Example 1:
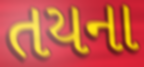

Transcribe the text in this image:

તયના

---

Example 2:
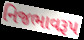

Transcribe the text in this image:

નિજભાવરૂપ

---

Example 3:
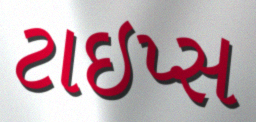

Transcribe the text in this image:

ટાઇપ્સ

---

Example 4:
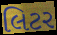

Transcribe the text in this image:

લિટર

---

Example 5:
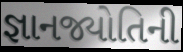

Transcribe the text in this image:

જ્ઞાનજ્યોતિની